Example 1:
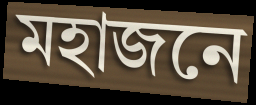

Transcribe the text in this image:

মহাজনে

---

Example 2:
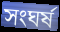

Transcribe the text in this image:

সংঘৰ্ষ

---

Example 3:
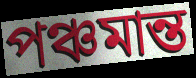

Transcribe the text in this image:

পঞ্চমান্ত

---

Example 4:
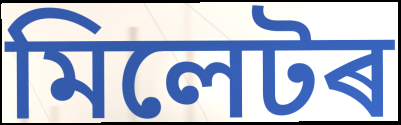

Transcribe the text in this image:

মিলেটৰ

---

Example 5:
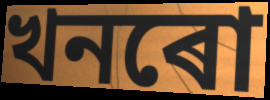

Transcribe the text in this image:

খনৰো